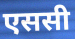
एससी